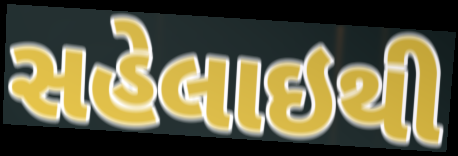
સહેલાઇથી